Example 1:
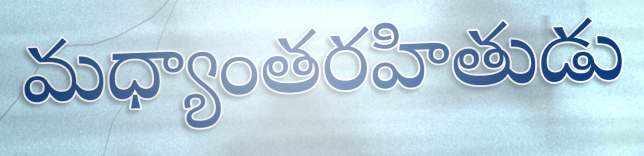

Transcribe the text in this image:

మధ్యాంతరహితుడు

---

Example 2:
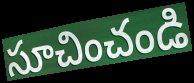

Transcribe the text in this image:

సూచించండి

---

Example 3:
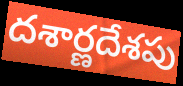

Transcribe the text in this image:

దశార్ణదేశపు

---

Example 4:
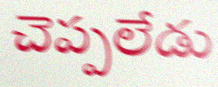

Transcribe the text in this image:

చెప్పలేడు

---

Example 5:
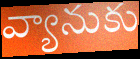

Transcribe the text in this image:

వ్యానుకు